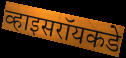
व्हाइसरॉयकडे